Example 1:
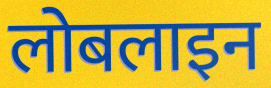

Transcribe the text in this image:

लोबलाइन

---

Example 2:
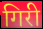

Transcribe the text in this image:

गिरी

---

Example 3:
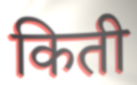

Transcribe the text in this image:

किती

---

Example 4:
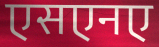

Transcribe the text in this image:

एसएनए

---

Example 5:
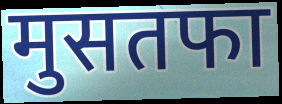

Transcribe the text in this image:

मुसतफा